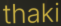
thaki